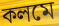
কলমে